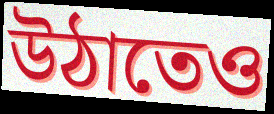
উঠাতেও